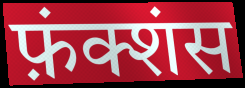
फ़ंक्शंस